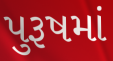
પુરૂષમાં